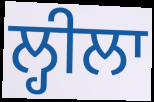
ਲ੍ਹੀਲਾ